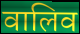
वालिव